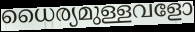
ധൈര്യമുള്ളവളോ